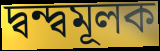
দ্বন্দ্বমূলক